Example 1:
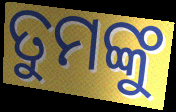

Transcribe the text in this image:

ତୁମଙ୍କୁ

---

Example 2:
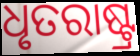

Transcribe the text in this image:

ଧୃତରାଷ୍ଟ୍ର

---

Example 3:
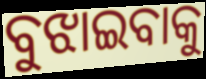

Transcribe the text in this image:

ବୁଝାଇବାକୁ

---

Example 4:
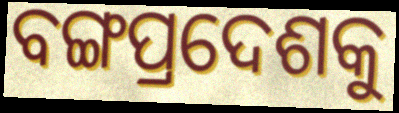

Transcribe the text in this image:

ବଙ୍ଗପ୍ରଦେଶକୁ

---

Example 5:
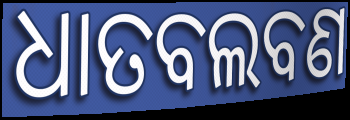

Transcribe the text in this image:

ଧାତବଲବଣ